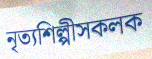
নৃত্যশিল্পীসকলক